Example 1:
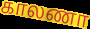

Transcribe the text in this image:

காலணா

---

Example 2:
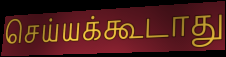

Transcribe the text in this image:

செய்யக்கூடாது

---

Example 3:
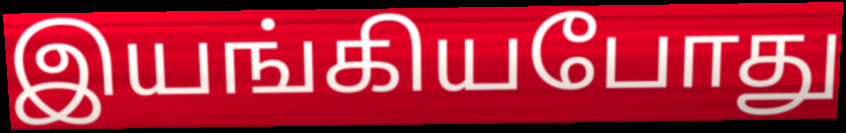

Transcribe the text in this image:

இயங்கியபோது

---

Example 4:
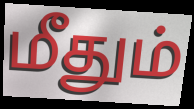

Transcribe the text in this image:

மீதும்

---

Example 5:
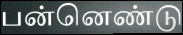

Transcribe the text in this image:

பன்னெண்டு